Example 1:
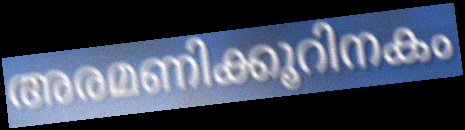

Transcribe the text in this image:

അരമണിക്കൂറിനകം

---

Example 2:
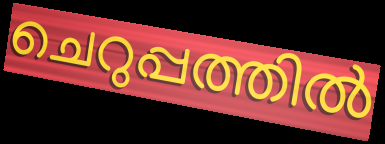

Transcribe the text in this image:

ചെറുപ്പത്തിൽ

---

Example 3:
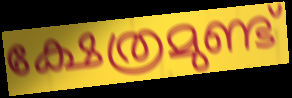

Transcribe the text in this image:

ക്ഷേത്രമുണ്ട്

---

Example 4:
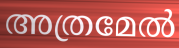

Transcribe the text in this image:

അത്രമേൽ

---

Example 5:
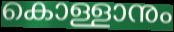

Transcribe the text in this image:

കൊള്ളാനും